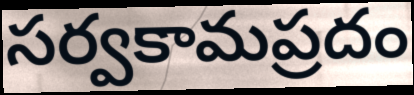
సర్వకామప్రదం